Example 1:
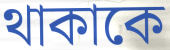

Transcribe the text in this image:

থাকাকে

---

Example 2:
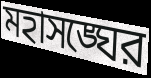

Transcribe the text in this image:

মহাসঙ্ঘের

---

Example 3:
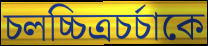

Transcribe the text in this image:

চলচ্চিত্রচর্চাকে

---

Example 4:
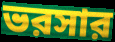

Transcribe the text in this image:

ভরসার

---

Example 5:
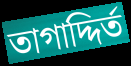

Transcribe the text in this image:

তাগাদ্দির্ত